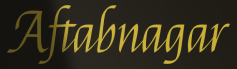
Aftabnagar